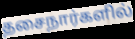
தசைநார்களில்